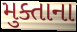
મુક્તાના